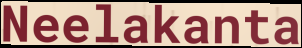
Neelakanta